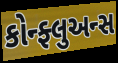
કોન્ફ્લુઅન્સ